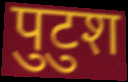
पुटुश